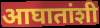
आघातांशी